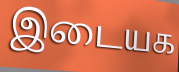
இடையக